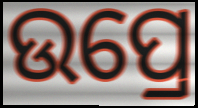
ଉପ୍ରେ